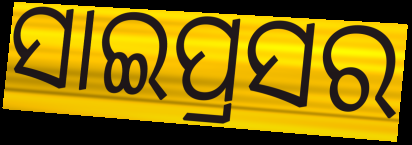
ସାଇପ୍ରସର